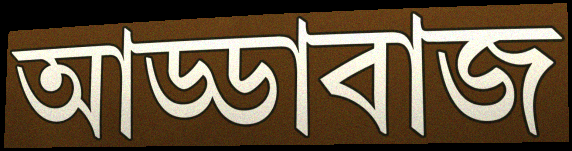
আড্ডাবাজ